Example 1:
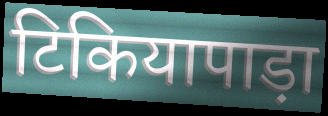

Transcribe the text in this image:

टिकियापाड़ा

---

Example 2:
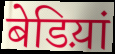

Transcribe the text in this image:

बेडिय़ां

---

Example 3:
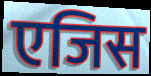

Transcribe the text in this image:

एजिस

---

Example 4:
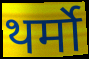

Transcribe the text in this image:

थर्मो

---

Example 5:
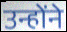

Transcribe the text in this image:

उन्‍होंने